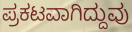
ಪ್ರಕಟವಾಗಿದ್ದುವು